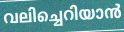
വലിച്ചെറിയാൻ